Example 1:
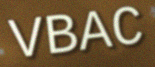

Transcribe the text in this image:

VBAC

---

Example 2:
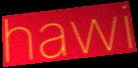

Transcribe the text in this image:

hawi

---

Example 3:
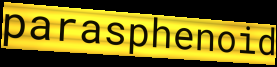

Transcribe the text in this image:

parasphenoid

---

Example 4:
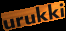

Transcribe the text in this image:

urukki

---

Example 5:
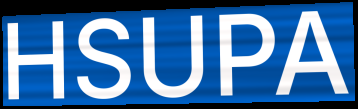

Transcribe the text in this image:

HSUPA